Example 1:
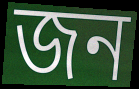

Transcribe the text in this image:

জন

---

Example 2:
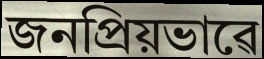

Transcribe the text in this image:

জনপ্ৰিয়ভাৱে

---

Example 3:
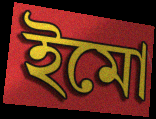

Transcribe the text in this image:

ইমো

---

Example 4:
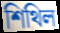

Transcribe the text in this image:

শিথিল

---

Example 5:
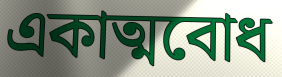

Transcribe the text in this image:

একাত্মবোধ